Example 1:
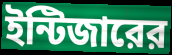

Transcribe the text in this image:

ইন্টিজারের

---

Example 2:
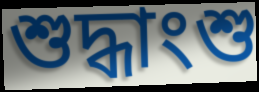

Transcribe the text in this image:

শুদ্ধাংশু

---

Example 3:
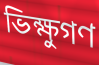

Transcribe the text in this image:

ভিক্ষুগণ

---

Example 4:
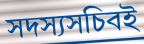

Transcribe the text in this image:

সদস্যসচিবই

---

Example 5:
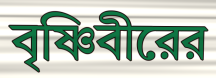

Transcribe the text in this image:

বৃষ্ণিবীরের